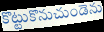
కొట్టుకొనుచుండెను